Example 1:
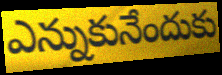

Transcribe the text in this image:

ఎన్నుకునేందుకు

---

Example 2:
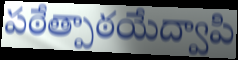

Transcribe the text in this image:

పఠేత్పాఠయేద్వాపి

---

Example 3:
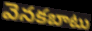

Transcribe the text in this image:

వెనకబాటు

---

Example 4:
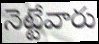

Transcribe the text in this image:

నెట్టేవారు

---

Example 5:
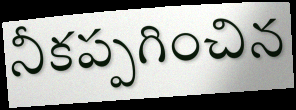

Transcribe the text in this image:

నీకప్పగించిన